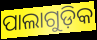
ପାଲାଗୁଡ଼ିକ